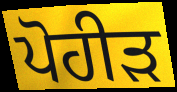
ਪੋਹੀੜ